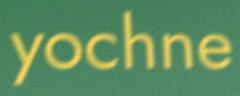
yochne